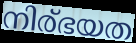
നിര്ഭയത